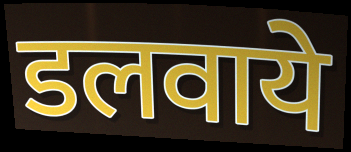
डलवाये